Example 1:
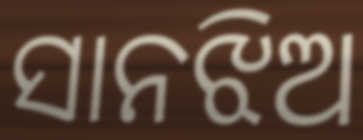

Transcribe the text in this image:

ସାନଝିଅ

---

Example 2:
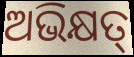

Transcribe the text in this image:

ଅଭିକ୍ଷତ୍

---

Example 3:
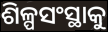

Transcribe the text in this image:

ଶିଳ୍ପସଂସ୍ଥାକୁ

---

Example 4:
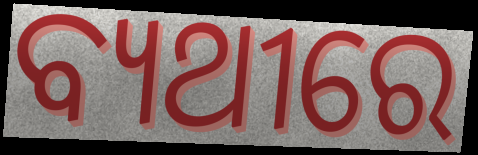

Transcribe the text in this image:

ବ୍ୟଥୀରେ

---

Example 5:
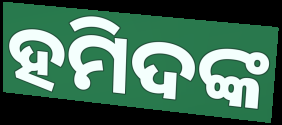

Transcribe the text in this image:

ହମିଦଙ୍କ